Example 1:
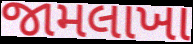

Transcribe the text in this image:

જામલાખા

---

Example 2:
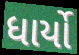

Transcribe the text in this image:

ધાર્યો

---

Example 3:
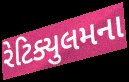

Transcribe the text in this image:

રેટિક્યુલમના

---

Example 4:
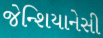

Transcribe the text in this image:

જેન્શિયાનેસી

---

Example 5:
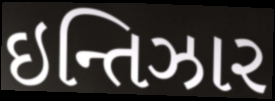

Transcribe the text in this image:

ઇન્તિઝાર